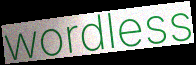
wordless